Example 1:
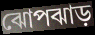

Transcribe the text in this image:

ঝোপঝাড়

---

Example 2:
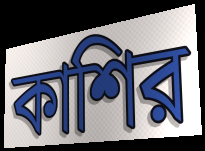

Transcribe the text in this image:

কাশির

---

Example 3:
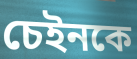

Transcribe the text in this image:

চেইনকে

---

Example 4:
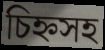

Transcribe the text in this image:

চিহ্নসহ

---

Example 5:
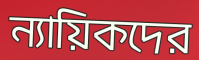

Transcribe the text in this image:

ন্যায়িকদের